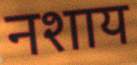
नशाय